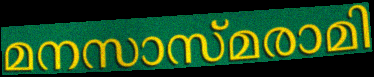
മനസാസ്മരാമി